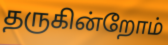
தருகின்றோம்